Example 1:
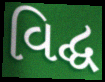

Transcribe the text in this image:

વિદ્ઘ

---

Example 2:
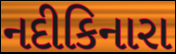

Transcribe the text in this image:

નદીકિનારા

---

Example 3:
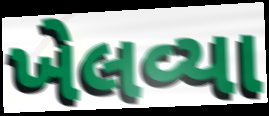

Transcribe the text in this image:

ખેલવ્યા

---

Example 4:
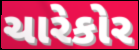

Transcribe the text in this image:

ચારેકોર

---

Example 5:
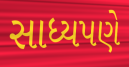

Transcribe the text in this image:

સાધ્યપણે